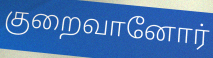
குறைவானோர்